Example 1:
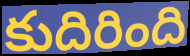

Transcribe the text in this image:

కుదిరింది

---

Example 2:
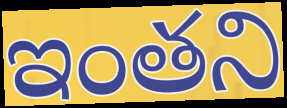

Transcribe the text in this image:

ఇంతని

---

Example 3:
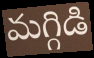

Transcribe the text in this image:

మగ్గిడి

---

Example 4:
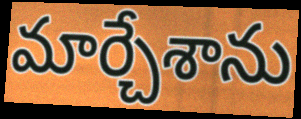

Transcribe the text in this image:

మార్చేశాను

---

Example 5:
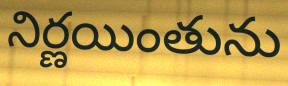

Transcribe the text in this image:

నిర్ణయింతును